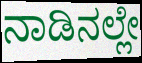
ನಾಡಿನಲ್ಲೇ